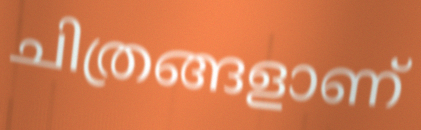
ചിത്രങ്ങളാണ്